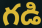
గడి